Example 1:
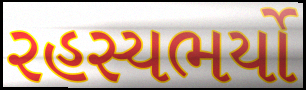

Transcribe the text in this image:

રહસ્યભર્યો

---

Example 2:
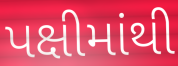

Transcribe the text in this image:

પક્ષીમાંથી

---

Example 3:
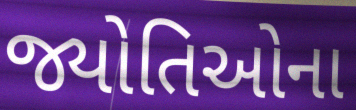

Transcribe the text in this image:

જ્યોતિઓના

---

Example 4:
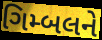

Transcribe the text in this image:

ગિમ્બલને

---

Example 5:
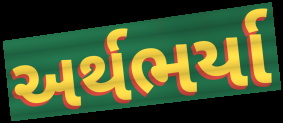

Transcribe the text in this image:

અર્થભર્યા